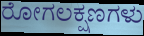
ರೋಗಲಕ್ಷಣಗಳು